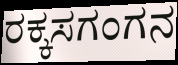
ರಕ್ಕಸಗಂಗನ